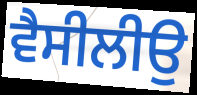
ਵੈਸੀਲੀਉ